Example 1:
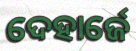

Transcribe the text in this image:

ଦେହାର୍ଜେ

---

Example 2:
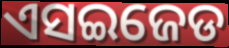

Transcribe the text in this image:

ଏସଇଜେଡ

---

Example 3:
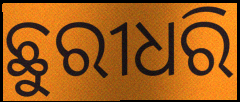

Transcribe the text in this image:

ଛୁରୀଧରି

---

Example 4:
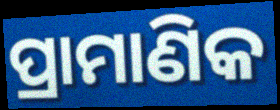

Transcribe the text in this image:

ପ୍ରାମାଣିକ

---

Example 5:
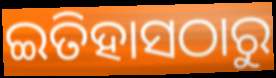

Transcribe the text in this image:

ଇତିହାସଠାରୁ